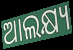
ଆଲକ୍ଷ୍ୟ